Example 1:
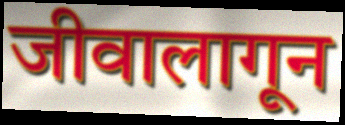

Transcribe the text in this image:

जीवालागून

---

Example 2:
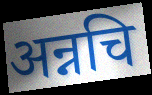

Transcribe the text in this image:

अन्नचि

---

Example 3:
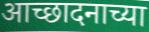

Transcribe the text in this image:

आच्छादनाच्या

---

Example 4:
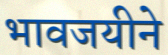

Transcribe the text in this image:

भावजयीने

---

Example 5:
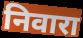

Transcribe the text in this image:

निवारा